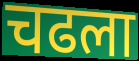
चढला